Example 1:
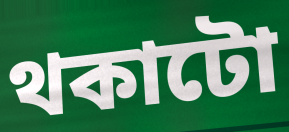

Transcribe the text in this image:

থকাটো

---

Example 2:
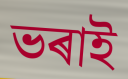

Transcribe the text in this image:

ভৰাই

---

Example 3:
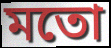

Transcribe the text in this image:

মতো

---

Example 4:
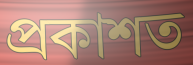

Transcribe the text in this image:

প্ৰকাশত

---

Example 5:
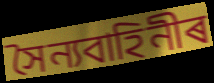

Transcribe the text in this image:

সৈন্যবাহিনীৰ